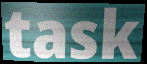
task